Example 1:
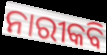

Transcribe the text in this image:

ନାରୀକବି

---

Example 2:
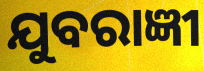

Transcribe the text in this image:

ଯୁବରାଜ୍ଞୀ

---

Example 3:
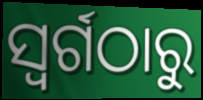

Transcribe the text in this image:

ସ୍ଵର୍ଗଠାରୁ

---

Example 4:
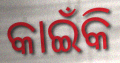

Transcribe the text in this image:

କାଇଁକି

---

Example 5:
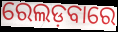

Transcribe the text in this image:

ରେଲଡ଼ବାରେ